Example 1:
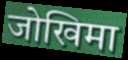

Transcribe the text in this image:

जोखिमा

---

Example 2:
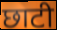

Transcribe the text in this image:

छाटी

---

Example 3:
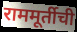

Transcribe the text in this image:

राममूर्तीची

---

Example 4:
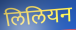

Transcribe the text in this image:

लिलियन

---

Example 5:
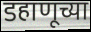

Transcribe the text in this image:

डहाणूच्या